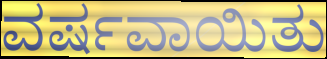
ವರ್ಷವಾಯಿತು